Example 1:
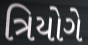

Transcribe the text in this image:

ત્રિયોગે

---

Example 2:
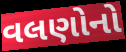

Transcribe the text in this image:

વલણોનો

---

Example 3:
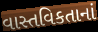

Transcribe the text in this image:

વાસ્તવિકતાનાં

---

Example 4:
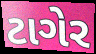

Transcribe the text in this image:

ટાગેર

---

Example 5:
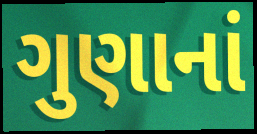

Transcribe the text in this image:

ગુણાનાં